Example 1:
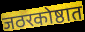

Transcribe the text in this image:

जठरकोष्ठात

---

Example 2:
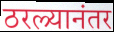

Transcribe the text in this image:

ठरल्यानंतर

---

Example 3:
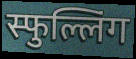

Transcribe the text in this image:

स्फुल्लिंग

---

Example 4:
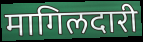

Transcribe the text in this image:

मागिलदारी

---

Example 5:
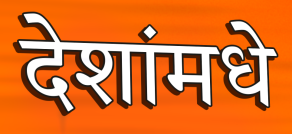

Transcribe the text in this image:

देशांमधे